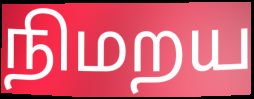
நிமறய